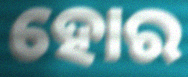
ହୋର